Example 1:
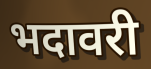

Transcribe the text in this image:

भदावरी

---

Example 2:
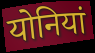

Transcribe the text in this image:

योनियां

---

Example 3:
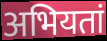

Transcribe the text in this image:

अभियतां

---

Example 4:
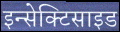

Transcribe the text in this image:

इन्सेक्टिसाइड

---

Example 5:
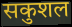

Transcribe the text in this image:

सकुशल